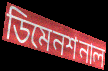
ডিমেনশনাল